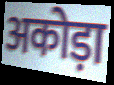
अकोड़ा